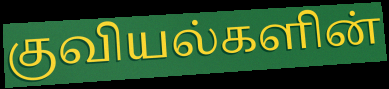
குவியல்களின்